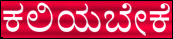
ಕಲಿಯಬೇಕೆ